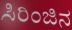
ಸಿರಿಂಜಿನ